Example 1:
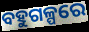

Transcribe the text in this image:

ବହୁଗଳ୍ପରେ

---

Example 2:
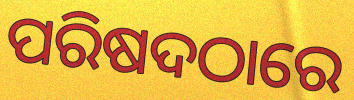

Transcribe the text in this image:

ପରିଷଦଠାରେ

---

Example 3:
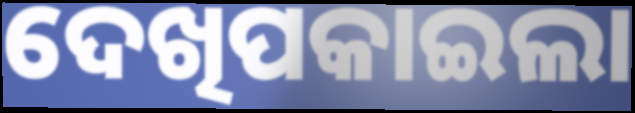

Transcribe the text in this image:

ଦେଖିପକାଇଲା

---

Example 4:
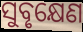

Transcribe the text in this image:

ସୁବୃକ୍ଷେଣ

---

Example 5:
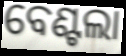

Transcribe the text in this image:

ବେଣ୍ଟଲା